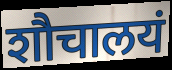
शौचालयं